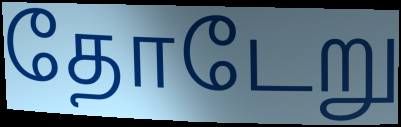
தோடேறு